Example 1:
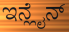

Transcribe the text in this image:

ಇನ್ಲೈನ್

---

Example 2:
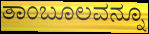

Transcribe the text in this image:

ತಾಂಬೂಲವನ್ನೂ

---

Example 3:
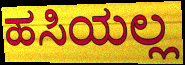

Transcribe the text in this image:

ಹಸಿಯಲ್ಲ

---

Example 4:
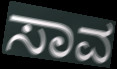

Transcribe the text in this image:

ಸಾವ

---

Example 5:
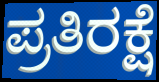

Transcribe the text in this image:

ಪ್ರತಿರಕ್ಷೆ